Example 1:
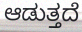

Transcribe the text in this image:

ಆಡುತ್ತದೆ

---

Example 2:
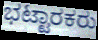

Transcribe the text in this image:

ಭಟ್ಟಾರಕರು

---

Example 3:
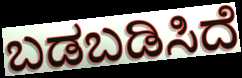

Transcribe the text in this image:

ಬಡಬಡಿಸಿದೆ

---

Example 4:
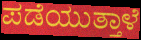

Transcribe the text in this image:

ಪಡೆಯುತ್ತಾಳೆ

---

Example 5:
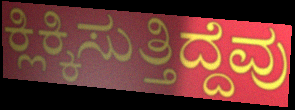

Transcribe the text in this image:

ಕ್ಲಿಕ್ಕಿಸುತ್ತಿದ್ದೆವು